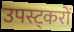
उपस्ट्करों